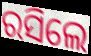
ରସିଲେ